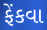
ફેંકવા